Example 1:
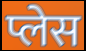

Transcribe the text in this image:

प्लेस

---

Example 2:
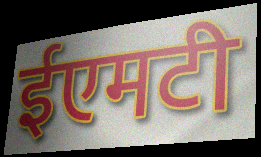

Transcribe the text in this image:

ईएमटी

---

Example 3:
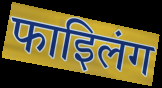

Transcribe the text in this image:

फाइिलंग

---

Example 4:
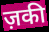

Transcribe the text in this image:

ज़की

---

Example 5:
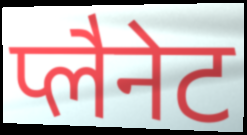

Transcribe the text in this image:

प्लैनेट